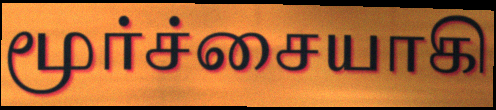
மூர்ச்சையாகி